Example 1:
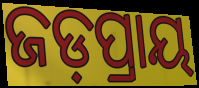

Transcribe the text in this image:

ଜଡ଼ପ୍ରାୟ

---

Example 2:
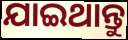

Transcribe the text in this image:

ଯାଇଥାନ୍ତୁ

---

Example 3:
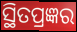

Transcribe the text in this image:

ସ୍ଥିତପ୍ରଜ୍ଞର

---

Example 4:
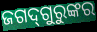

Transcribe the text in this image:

ଜଗଦ୍‌ଗୁରୁଙ୍କର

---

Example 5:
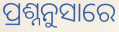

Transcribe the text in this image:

ପ୍ରଶ୍ନନୁସାରେ